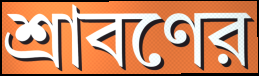
শ্রাবণের